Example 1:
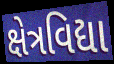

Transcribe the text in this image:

ક્ષેત્રવિદ્યા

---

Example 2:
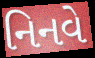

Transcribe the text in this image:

નિનવે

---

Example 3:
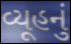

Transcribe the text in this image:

વ્યૂહનું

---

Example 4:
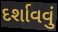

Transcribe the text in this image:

દર્શાવવું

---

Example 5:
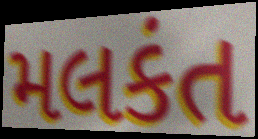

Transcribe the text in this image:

મલકંત